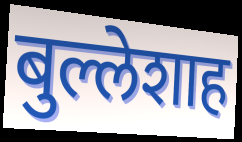
बुल्लेशाह